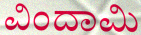
ವಿಂದಾಮಿ